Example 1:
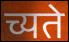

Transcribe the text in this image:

च्यते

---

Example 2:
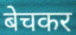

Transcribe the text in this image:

बेचकर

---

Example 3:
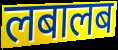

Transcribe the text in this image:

लबालब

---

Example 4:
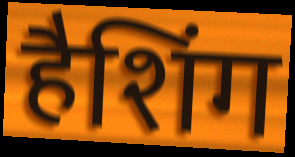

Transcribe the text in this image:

हैशिंग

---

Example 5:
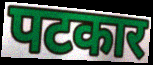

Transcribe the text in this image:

पटकार